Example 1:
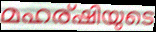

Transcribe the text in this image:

മഹര്ഷിയുടെ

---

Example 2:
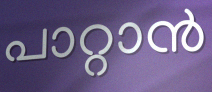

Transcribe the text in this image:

പാറ്റാൻ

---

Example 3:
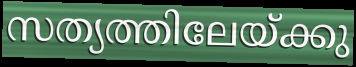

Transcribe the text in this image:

സത്യത്തിലേയ്ക്കു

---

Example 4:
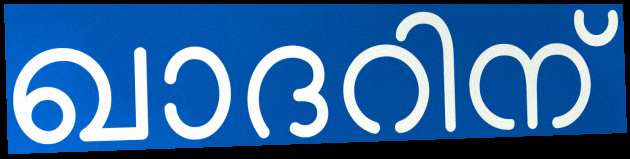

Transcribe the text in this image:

ഖാദറിന്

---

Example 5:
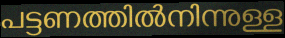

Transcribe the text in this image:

പട്ടണത്തിൽനിന്നുള്ള